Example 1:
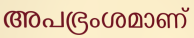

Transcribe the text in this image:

അപഭ്രംശമാണ്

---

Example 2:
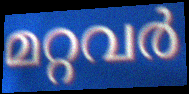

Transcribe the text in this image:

മറ്റവർ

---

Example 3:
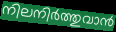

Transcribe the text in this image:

നിലനിർത്തുവാൻ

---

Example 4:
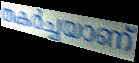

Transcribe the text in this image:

തകർച്ചയാണ്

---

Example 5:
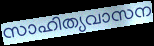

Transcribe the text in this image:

സാഹിത്യവാസന